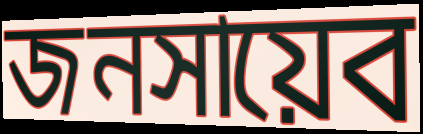
জনসায়েব